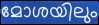
മോശയിലും